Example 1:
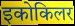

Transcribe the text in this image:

इकोकिलर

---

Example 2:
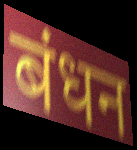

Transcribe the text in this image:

बंधन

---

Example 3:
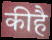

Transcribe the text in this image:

कीहै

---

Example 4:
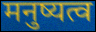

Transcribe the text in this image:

मनुष्यत्‍व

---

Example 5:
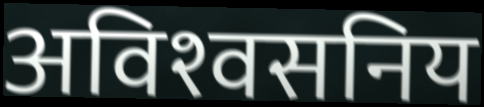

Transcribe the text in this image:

अविश्वसनिय